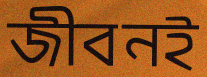
জীবনই